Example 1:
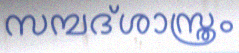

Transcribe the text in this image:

സമ്പദ്ശാസ്ത്രം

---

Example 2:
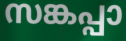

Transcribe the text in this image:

സങ്കപ്പാ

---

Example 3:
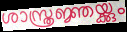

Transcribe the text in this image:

ശാസ്ത്രജ്ഞയ്ക്കും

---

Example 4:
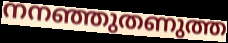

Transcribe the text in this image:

നനഞ്ഞുതണുത്ത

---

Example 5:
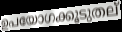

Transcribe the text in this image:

ഉപയോഗക്കൂടുതല്